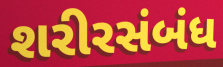
શરીરસંબંધ